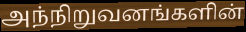
அந்நிறுவனங்களின்